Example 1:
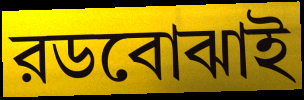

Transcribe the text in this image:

রডবোঝাই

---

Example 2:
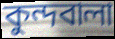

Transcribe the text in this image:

কুন্দবালা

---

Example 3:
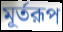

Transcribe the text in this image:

মূর্তরূপ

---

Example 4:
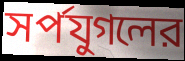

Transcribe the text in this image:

সর্পযুগলের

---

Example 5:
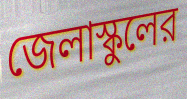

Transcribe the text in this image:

জেলাস্কুলের